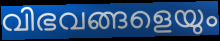
വിഭവങ്ങളെയും